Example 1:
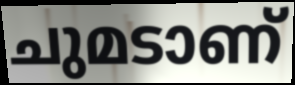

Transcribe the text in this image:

ചുമടാണ്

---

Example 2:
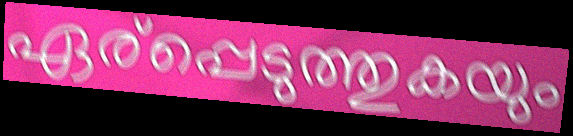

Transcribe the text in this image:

ഏര്പ്പെടുത്തുകയും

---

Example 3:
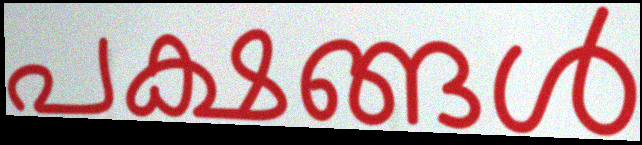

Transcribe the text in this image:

പക്ഷങ്ങൾ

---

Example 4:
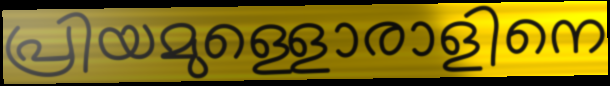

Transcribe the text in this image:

പ്രിയമുള്ളൊരാളിനെ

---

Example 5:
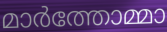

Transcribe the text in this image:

മാർത്തോമ്മാ